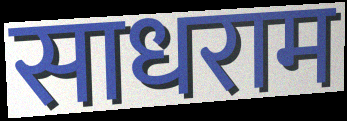
साधराम